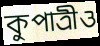
কুপাত্রীও